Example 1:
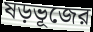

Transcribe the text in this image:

ষড়ভূজের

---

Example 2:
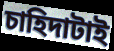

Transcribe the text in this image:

চাহিদাটাই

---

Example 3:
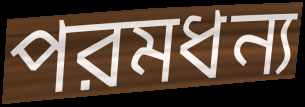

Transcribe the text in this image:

পরমধন্য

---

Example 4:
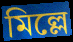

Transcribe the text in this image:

মিল্লে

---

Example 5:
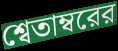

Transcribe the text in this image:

শ্বেতাম্বরের